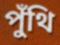
পুঁথি